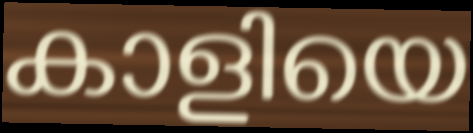
കാളിയെ